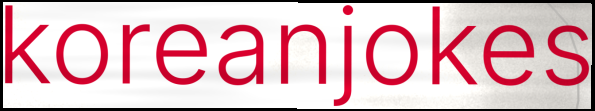
koreanjokes